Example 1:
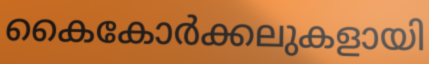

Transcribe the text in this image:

കൈകോർക്കലുകളായി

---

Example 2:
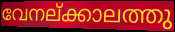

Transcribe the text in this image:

വേനല്ക്കാലത്തു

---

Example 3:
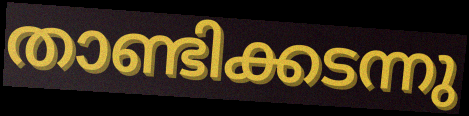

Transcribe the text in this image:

താണ്ടിക്കടന്നു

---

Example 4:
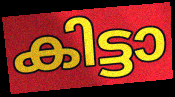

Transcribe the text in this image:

കിട്ടാ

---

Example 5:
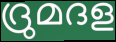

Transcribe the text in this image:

ദ്രുമദള